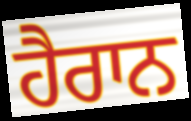
ਹੈਰਾਨ